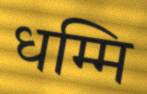
धम्मि